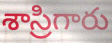
శాస్రిగారు